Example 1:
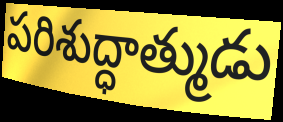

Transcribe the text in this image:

పరిశుద్ధాత్ముడు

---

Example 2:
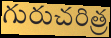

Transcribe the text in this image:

గురుచరిత్ర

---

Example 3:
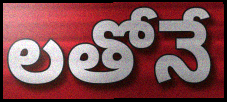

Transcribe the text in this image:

లతోనే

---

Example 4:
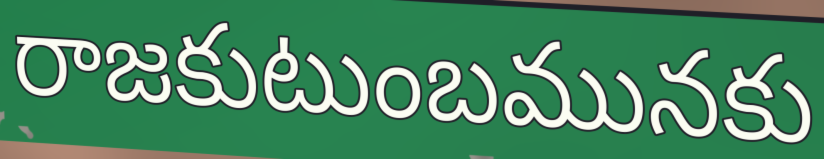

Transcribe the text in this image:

రాజకుటుంబమునకు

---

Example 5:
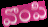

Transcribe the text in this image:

వొంపి